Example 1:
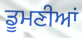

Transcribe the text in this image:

ਡੂਮਣੀਆਂ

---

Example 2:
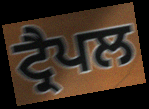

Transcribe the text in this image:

ਟ੍ਰੈਪਲ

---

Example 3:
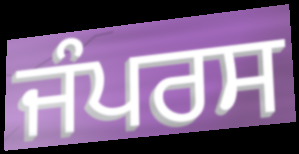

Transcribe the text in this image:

ਜੰਪਰਸ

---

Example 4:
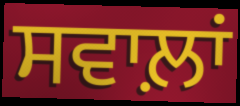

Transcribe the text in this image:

ਸਵਾਲ਼ਾਂ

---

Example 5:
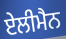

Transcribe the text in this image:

ਏਲੀਮੈਨ